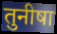
तुनीषा